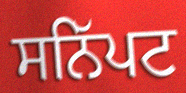
ਸਨਿੱਪਟ